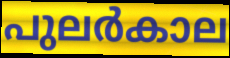
പുലർകാല